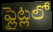
ఫ్లైట్లలో